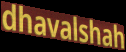
dhavalshah